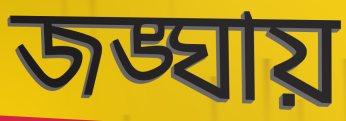
জঙ্ঘায়